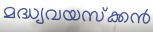
മദ്ധ്യവയസ്ക്കൻ